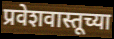
प्रवेशवास्तूच्या